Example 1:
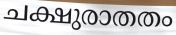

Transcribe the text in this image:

ചക്ഷുരാതതം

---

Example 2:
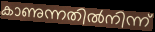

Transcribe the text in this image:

കാണുന്നതിൽനിന്ന്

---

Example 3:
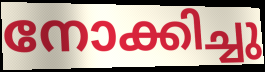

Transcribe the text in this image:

നോക്കിച്ചു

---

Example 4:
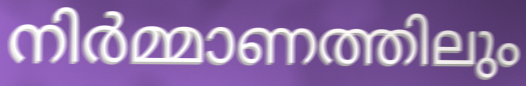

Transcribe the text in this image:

നിർമ്മാണത്തിലും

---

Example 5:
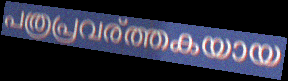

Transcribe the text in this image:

പത്രപ്രവര്ത്തകയായ